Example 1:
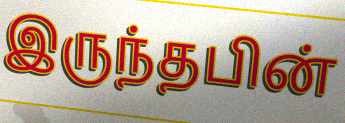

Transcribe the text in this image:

இருந்தபின்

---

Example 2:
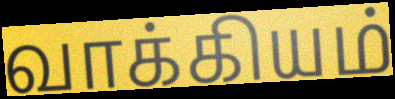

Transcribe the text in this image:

வாக்கியம்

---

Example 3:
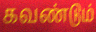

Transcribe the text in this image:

கவண்டும்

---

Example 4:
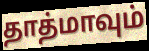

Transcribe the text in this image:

தாத்மாவும்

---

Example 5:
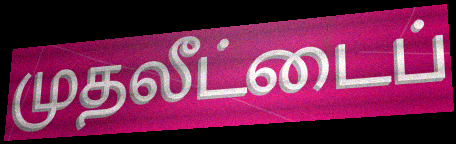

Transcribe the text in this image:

முதலீட்டைப்